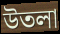
উতলা